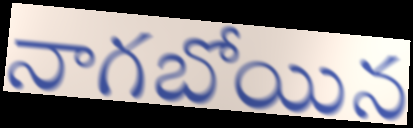
నాగబోయిన